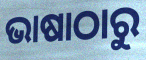
ଭାଷାଠାରୁ